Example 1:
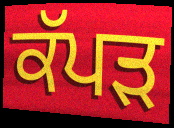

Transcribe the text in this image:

ਕੱਪੜ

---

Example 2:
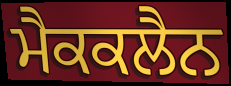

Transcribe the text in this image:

ਮੈਕਕਲੈਨ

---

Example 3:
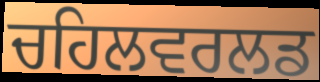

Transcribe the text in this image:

ਚਹਿਲਵਰਲਡ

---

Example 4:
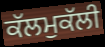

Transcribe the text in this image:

ਕੱਲਮੁਕੱਲੀ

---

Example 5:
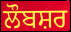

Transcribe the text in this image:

ਲੌਬਸ਼ਰ